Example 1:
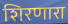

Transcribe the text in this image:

शिरणारा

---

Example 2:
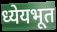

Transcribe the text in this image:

ध्येयभूत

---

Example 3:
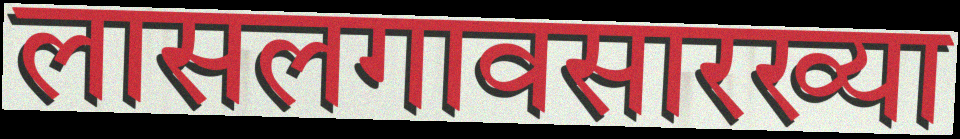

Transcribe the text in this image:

लासलगावसारख्या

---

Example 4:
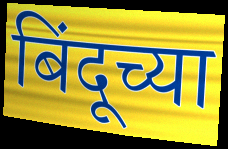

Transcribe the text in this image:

बिंदूच्या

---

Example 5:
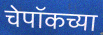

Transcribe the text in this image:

चेपॉकच्या